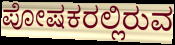
ಪೋಷಕರಲ್ಲಿರುವ